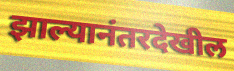
झाल्यानंतरदेखील